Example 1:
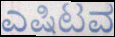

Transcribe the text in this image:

ಎಷಿಟವ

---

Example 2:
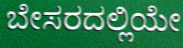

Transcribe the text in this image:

ಬೇಸರದಲ್ಲಿಯೇ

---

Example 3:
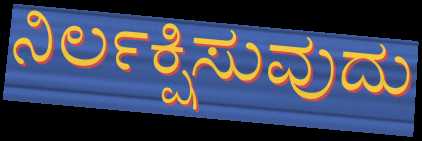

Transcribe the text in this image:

ನಿರ್ಲಕ್ಷಿಸುವುದು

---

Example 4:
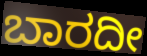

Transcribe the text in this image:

ಬಾರದೀ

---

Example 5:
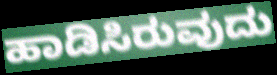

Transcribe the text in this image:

ಹಾಡಿಸಿರುವುದು